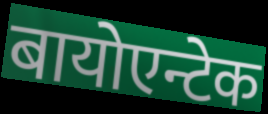
बायोएन्टेक